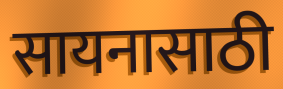
सायनासाठी